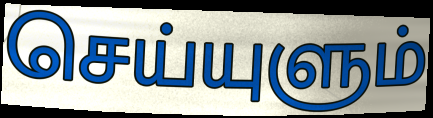
செய்யுளும்